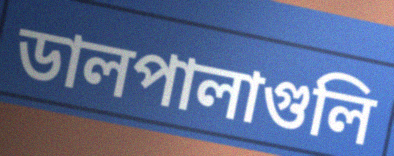
ডালপালাগুলি